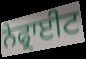
ਨੇਫ੍ਰਾਈਟ